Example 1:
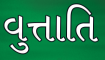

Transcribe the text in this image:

વુત્તાતિ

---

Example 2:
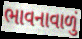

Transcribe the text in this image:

ભાવનાવાળું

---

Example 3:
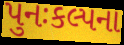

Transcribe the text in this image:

પુનઃકલ્પના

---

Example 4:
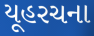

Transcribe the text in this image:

યૂહરચના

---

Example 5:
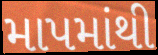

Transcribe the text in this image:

માપમાંથી